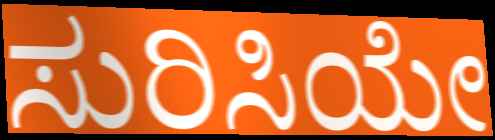
ಸುರಿಸಿಯೇ